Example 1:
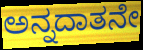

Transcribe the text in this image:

ಅನ್ನದಾತನೇ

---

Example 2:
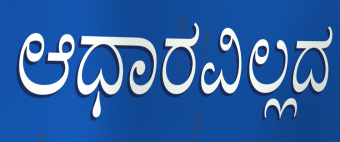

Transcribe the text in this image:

ಆಧಾರವಿಲ್ಲದ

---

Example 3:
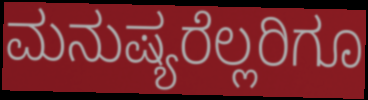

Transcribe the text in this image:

ಮನುಷ್ಯರೆಲ್ಲರಿಗೂ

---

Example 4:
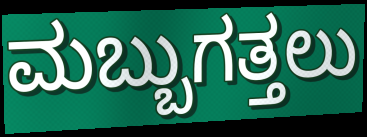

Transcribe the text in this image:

ಮಬ್ಬುಗತ್ತಲು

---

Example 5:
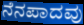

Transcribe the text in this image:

ನೆನಪಾದವು